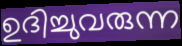
ഉദിച്ചുവരുന്ന